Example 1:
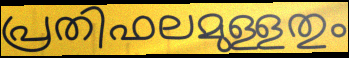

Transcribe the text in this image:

പ്രതിഫലമുള്ളതും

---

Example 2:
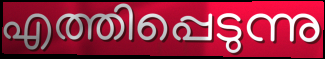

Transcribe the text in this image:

എത്തിപ്പെടുന്നു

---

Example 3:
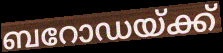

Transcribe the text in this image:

ബറോഡയ്ക്ക്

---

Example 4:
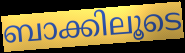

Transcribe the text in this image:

ബാക്കിലൂടെ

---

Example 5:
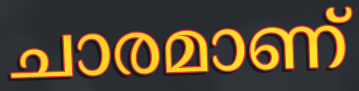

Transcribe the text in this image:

ചാരമാണ്